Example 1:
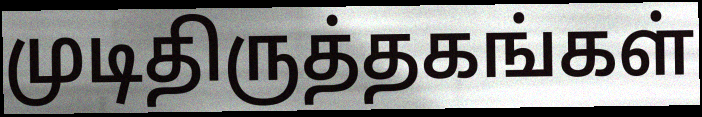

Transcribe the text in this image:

முடிதிருத்தகங்கள்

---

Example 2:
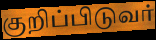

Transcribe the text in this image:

குறிப்பிடுவர்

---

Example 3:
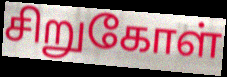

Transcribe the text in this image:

சிறுகோள்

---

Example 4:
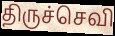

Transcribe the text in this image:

திருச்செவி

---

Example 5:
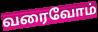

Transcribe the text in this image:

வரைவோம்